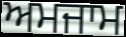
ਅਮਜਾਮ